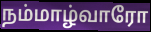
நம்மாழ்வாரோ